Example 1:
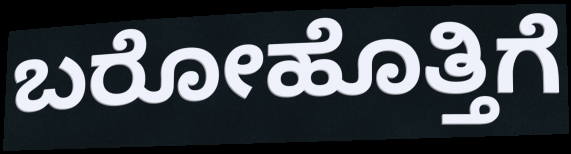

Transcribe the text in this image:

ಬರೋಹೊತ್ತಿಗೆ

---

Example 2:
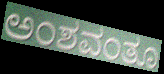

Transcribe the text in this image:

ಅಂಶವಂತೂ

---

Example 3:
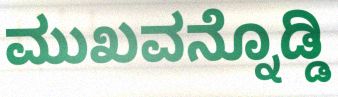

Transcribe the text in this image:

ಮುಖವನ್ನೊಡ್ಡಿ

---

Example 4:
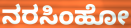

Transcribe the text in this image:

ನರಸಿಂಹೋ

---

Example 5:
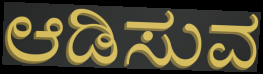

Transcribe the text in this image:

ಆಡಿಸುವ